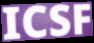
ICSF